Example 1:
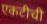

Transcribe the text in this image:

एकटीची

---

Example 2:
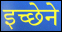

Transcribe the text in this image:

इच्छेने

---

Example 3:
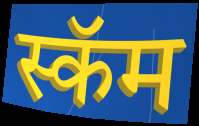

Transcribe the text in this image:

स्कॅम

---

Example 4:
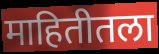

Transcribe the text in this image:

माहितीतला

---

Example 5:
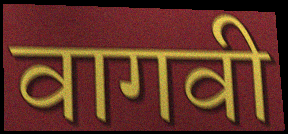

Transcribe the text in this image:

वागवी